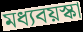
মধ্যবয়স্কা